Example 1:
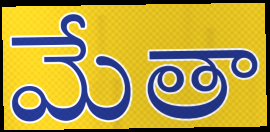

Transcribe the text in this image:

మేతా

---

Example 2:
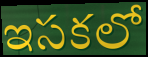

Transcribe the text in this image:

ఇసకలో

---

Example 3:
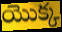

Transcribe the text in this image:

యొక్క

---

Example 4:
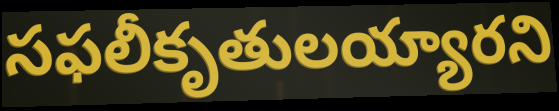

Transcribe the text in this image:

సఫలీకృతులయ్యారని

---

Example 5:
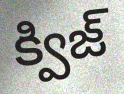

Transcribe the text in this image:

క్విజ్